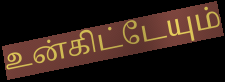
உன்கிட்டேயும்